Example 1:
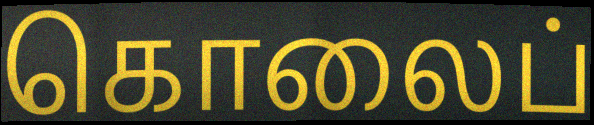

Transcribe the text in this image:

கொலைப்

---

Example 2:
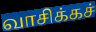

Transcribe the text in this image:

வாசிக்கச்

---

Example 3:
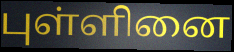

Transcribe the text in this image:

புள்ளினை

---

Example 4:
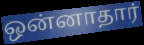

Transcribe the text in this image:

ஒன்னாதார்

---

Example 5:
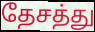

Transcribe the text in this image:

தேசத்து